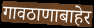
गावठाणाबाहेर